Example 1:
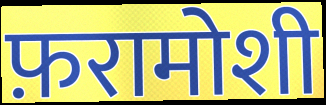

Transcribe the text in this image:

फ़रामोशी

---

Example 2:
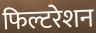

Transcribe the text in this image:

फिल्टरेशन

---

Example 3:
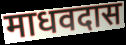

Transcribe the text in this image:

माधवदास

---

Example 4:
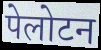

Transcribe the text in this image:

पेलोटन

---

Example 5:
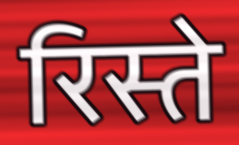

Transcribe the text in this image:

रिस्ते